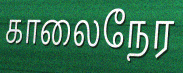
காலைநேர